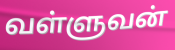
வள்ளுவன்